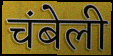
चंबेली